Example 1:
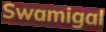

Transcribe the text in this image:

Swamigal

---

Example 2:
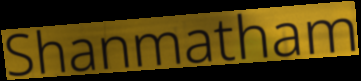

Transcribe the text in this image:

Shanmatham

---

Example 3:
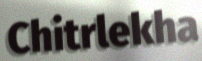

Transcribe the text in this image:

Chitrlekha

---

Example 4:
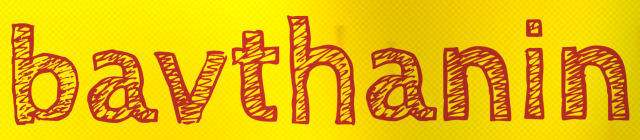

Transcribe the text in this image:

bavthanin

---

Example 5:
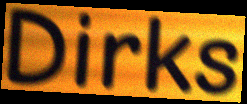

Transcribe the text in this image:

Dirks